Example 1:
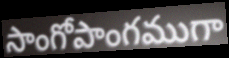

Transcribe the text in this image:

సాంగోపాంగముగా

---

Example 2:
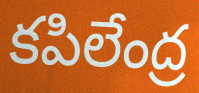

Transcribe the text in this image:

కపిలేంద్ర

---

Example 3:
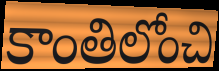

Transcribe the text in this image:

కాంతిలోంచి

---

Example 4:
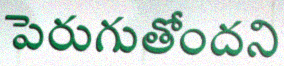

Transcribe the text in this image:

పెరుగుతోందని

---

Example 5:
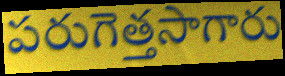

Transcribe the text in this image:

పరుగెత్తసాగారు